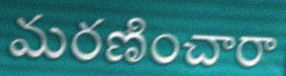
మరణించారా